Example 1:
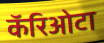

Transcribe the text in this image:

कॅरिओटा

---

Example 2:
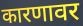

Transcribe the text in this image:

कारणावर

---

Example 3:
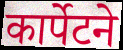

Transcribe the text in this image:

कार्पेटने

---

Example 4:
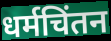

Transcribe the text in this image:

धर्मचिंतन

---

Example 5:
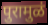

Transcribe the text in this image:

पुरामुळं